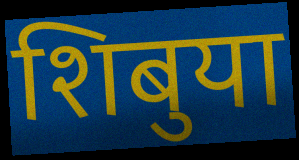
शिबुया